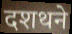
दशथने